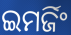
ଇମର୍ଜିଂ